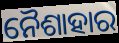
ନୈଶାହାର